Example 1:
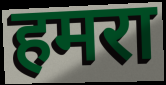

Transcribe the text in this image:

हमरा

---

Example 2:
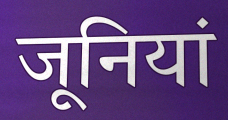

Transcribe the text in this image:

जूनियां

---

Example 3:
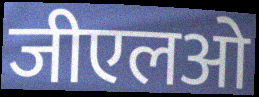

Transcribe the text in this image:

जीएलओ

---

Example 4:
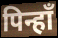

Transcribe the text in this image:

पिन्हाँ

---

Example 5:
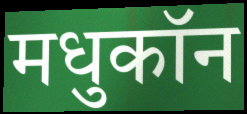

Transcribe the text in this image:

मधुकॉन